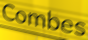
Combes